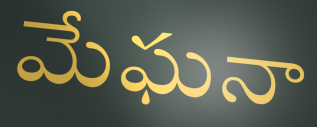
మేఘనా